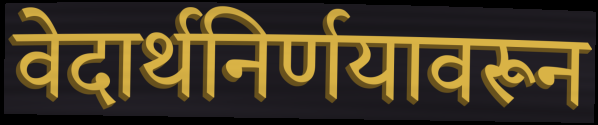
वेदार्थनिर्णयावरून